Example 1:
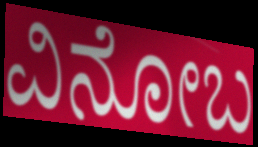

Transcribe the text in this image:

ವಿನೋಬ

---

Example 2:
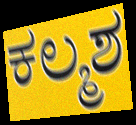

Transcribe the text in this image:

ಕಲ್ಮಶ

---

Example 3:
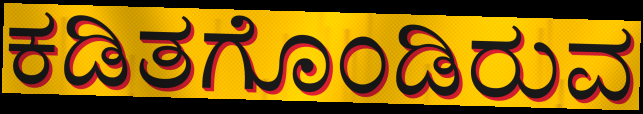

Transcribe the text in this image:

ಕಡಿತಗೊಂಡಿರುವ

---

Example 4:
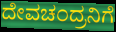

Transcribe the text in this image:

ದೇವಚಂದ್ರನಿಗೆ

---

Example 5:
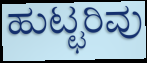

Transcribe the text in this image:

ಹುಟ್ಟರಿವು